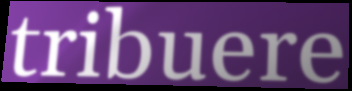
tribuere